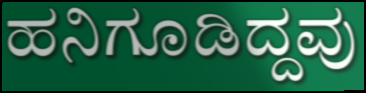
ಹನಿಗೂಡಿದ್ದವು